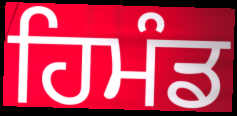
ਹਿਮੰਡ